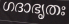
ഗദാഭൃതഃ